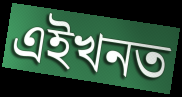
এইখনত